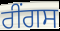
ਰੀਂਗਸ